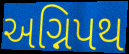
અગ્નિપથ